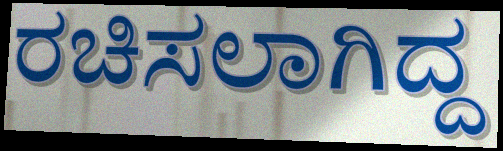
ರಚಿಸಲಾಗಿದ್ದ